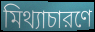
মিথ্যাচারণে